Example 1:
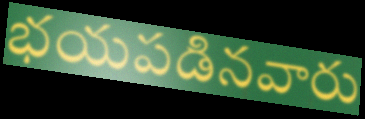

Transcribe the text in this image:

భయపడినవారు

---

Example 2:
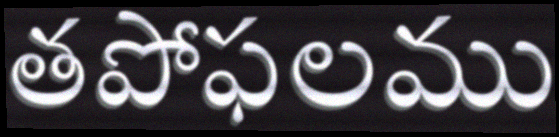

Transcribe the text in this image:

తపోఫలము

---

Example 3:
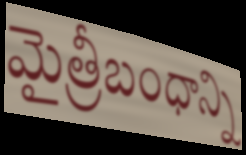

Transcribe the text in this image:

మైత్రీబంధాన్ని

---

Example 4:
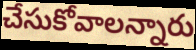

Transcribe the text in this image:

చేసుకోవాలన్నారు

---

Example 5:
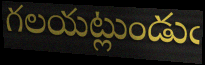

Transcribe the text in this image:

గలయట్లుండుఁ